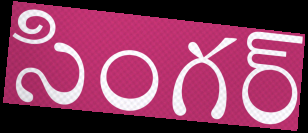
సింగర్